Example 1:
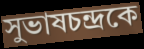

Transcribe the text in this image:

সুভাষচন্দ্রকে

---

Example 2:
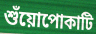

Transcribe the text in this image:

শুঁয়োপোকাটি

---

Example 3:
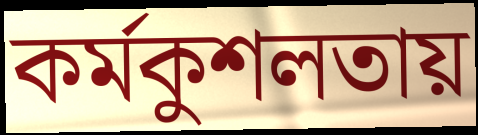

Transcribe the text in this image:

কর্মকুশলতায়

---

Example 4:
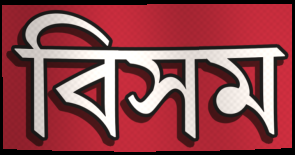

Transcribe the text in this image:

বিসম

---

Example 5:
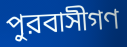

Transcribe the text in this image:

পুরবাসীগণ